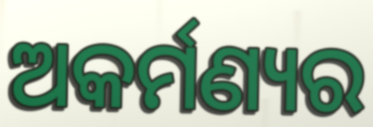
ଅକର୍ମଣ୍ୟର